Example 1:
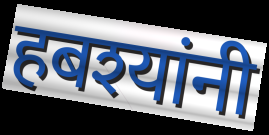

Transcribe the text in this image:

हबश्यांनी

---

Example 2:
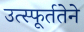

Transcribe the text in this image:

उत्स्फूर्ततेने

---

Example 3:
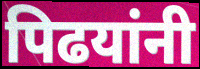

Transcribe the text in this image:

पिढयांनी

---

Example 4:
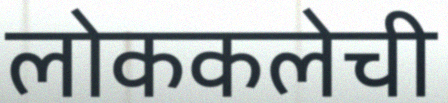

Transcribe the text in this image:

लोककलेची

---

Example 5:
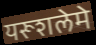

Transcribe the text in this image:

यरूशलेमे